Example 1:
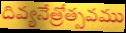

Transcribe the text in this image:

దివ్యనేత్రోత్సవము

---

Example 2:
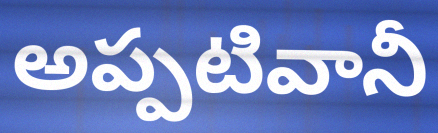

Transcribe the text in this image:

అప్పటివానీ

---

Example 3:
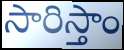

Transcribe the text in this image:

సారిస్తాం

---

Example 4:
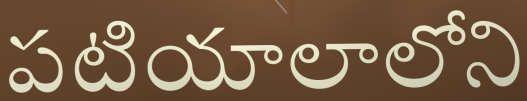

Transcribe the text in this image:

పటియాలాలోని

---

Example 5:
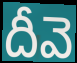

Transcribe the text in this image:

దీవె